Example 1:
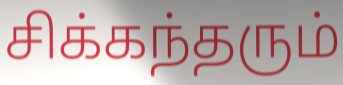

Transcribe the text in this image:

சிக்கந்தரும்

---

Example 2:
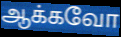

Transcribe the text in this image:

ஆக்கவோ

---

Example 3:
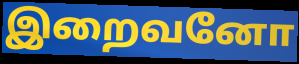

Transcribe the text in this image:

இறைவனோ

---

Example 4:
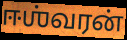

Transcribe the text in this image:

ஈஶ்வரன்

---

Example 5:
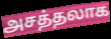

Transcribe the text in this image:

அசத்தலாக